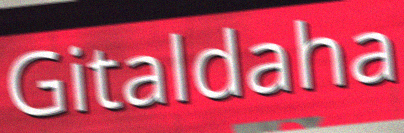
Gitaldaha